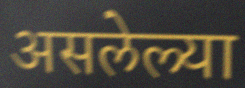
असलेल्या